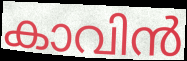
കാവിൻ